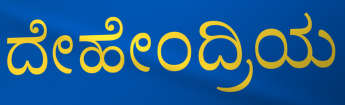
ದೇಹೇಂದ್ರಿಯ